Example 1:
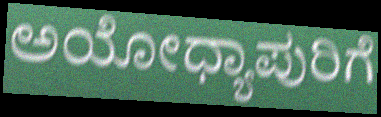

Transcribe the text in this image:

ಅಯೋಧ್ಯಾಪುರಿಗೆ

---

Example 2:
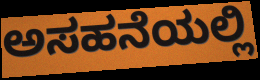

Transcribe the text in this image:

ಅಸಹನೆಯಲ್ಲಿ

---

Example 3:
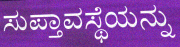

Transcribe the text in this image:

ಸುಪ್ತಾವಸ್ಥೆಯನ್ನು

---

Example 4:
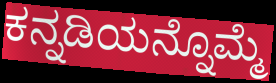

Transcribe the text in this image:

ಕನ್ನಡಿಯನ್ನೊಮ್ಮೆ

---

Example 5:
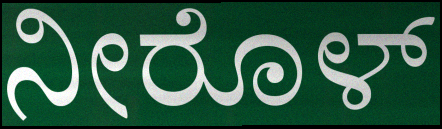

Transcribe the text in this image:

ನೀರೊಳ್